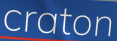
craton